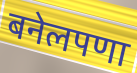
बनेलपणा